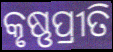
କୃଷ୍ଣପ୍ରୀତି